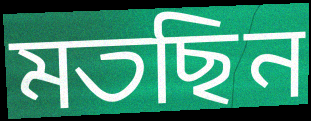
মতছিন